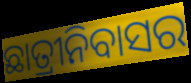
ଛାତ୍ରୀନିବାସର